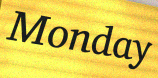
Monday